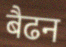
बैढन